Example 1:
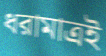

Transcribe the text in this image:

ধরামাত্রই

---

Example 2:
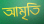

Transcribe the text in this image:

আমৃতি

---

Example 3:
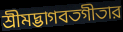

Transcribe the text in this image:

শ্রীমদ্ভাগবতগীতার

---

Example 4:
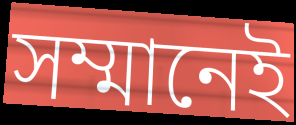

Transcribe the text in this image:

সম্মানেই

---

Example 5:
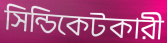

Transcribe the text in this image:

সিন্ডিকেটকারী